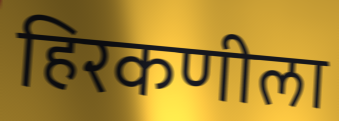
हिरकणीला